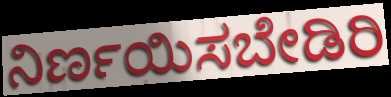
ನಿರ್ಣಯಿಸಬೇಡಿರಿ